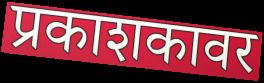
प्रकाशकावर